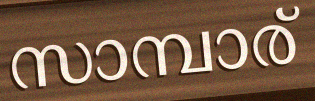
സാമ്പാര്